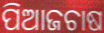
ପିଆଜଚାଷ